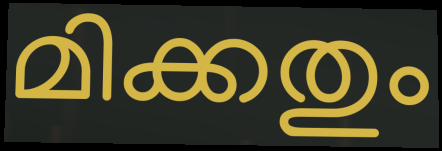
മിക്കതും